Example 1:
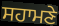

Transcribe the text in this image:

ਸਹਾਮਣੇ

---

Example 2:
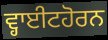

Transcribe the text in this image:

ਵ੍ਹਾਈਟਹੋਰਨ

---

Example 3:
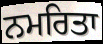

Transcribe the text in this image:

ਨਮਰਿਤਾ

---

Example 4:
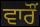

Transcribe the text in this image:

ਵਾਰੌਂ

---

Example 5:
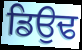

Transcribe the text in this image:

ਡਿਉਢ